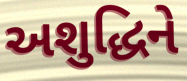
અશુદ્ધિને